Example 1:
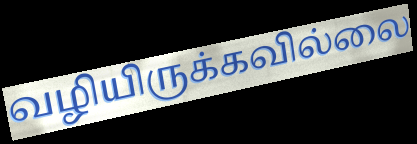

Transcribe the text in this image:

வழியிருக்கவில்லை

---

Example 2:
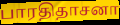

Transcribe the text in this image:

பாரதிதாசனா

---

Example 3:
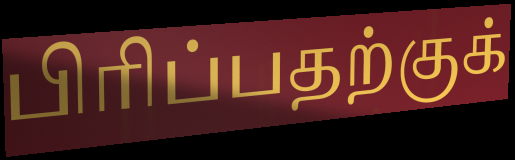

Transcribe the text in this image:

பிரிப்பதற்குக்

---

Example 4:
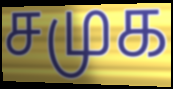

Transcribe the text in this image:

சமுக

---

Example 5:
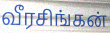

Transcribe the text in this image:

வீரசிங்கன்